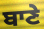
ਬਾਣੇ